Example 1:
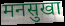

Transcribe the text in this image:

मनसुखा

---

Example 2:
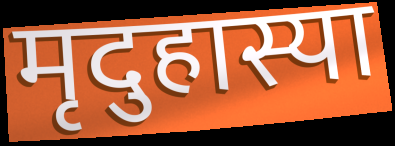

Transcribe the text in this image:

मृदुहास्या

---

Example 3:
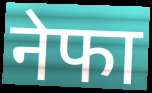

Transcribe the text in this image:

नेफा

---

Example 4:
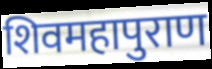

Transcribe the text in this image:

शिवमहापुराण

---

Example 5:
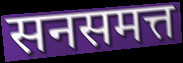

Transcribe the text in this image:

सनसमत्त